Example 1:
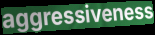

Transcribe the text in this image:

aggressiveness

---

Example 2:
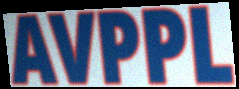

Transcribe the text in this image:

AVPPL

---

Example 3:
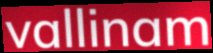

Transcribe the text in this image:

vallinam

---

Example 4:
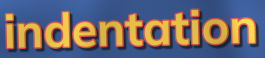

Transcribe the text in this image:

indentation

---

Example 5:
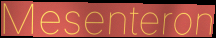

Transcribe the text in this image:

Mesenteron